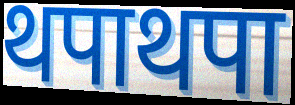
थपाथपा